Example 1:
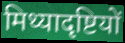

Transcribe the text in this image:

मिथ्यादृष्टियों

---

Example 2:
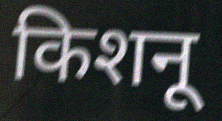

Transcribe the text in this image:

किशनू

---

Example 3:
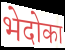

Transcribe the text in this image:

भेदोका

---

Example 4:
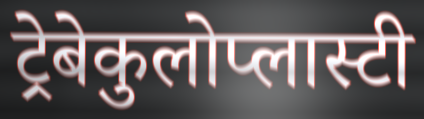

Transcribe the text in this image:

ट्रेबेकुलोप्लास्टी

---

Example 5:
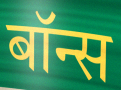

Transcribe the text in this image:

बॉन्स